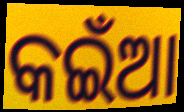
କଇଁଆ